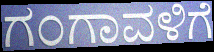
ಗಂಗಾವಳಿಗೆ